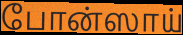
போன்ஸாய்